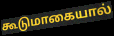
கூடுமாகையால்